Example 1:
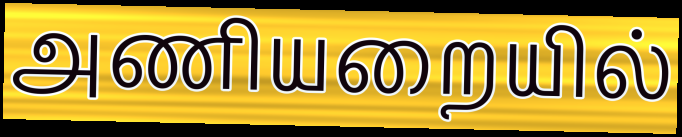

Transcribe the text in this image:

அணியறையில்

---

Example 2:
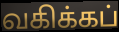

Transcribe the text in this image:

வகிக்கப்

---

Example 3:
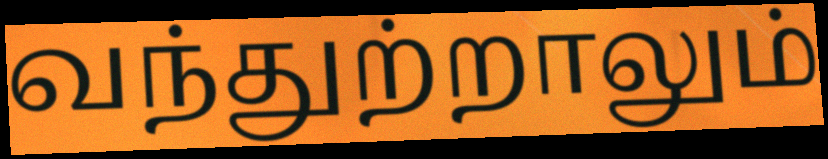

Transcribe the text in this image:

வந்துற்றாலும்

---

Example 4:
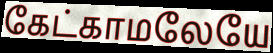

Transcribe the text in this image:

கேட்காமலேயே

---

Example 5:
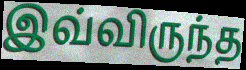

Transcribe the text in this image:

இவ்விருந்த